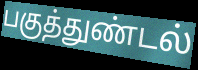
பகுத்துண்டல்